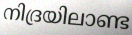
നിദ്രയിലാണ്ട